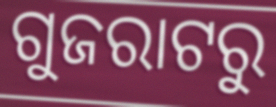
ଗୁଜରାଟରୁ